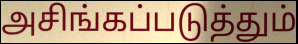
அசிங்கப்படுத்தும்